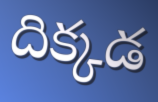
దిక్కడ